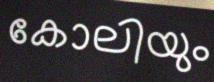
കോലിയും